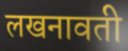
लखनावती